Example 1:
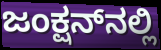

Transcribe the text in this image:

ಜಂಕ್ಷನ್‌ನಲ್ಲಿ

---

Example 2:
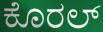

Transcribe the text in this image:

ಕೊರಲ್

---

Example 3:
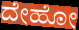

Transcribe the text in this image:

ದೇಹೋ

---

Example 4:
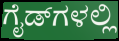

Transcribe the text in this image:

ಗೈಡ್‌ಗಳಲ್ಲಿ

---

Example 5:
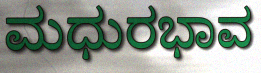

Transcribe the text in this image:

ಮಧುರಭಾವ